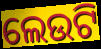
ଲେଉଟି